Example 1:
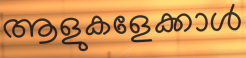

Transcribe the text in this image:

ആളുകളേക്കാൾ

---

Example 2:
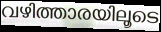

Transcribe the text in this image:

വഴിത്താരയിലൂടെ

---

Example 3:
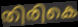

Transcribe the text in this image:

തിരികെ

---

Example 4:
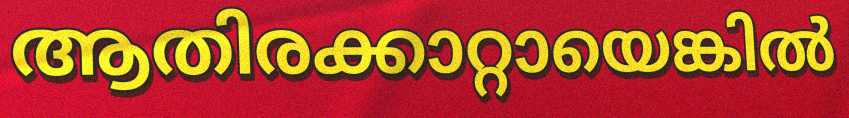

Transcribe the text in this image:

ആതിരക്കാറ്റായെങ്കിൽ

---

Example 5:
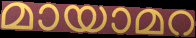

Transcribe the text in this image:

മായാമറ